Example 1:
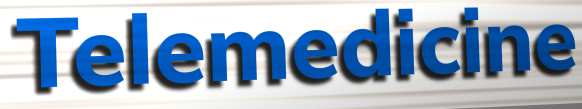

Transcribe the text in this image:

Telemedicine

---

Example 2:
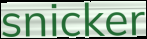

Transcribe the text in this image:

snicker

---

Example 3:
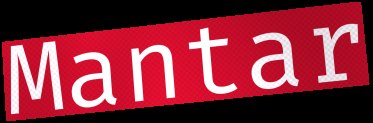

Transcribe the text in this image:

Mantar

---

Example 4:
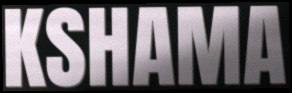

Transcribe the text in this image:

KSHAMA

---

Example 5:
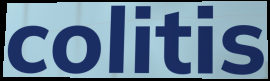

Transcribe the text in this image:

colitis